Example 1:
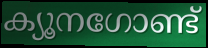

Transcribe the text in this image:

ക്യൂനഗോണ്ട്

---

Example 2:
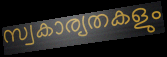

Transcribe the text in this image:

സ്വകാര്യതകളും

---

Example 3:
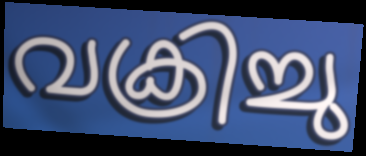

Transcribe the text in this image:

വക്രിച്ചു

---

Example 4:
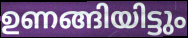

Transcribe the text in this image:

ഉണങ്ങിയിട്ടും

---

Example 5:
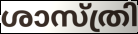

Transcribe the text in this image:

ശാസ്ത്രി